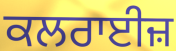
ਕਲਰਾਈਜ਼